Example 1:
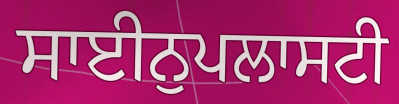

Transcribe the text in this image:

ਸਾਈਨੁਪਲਾਸਟੀ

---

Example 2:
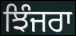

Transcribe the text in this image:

ਝਿੰਜਰਾ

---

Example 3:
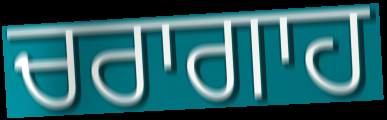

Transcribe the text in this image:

ਚਰਾਗਾਹ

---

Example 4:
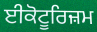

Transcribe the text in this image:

ਈਕੋਟੂਰਿਜ਼ਮ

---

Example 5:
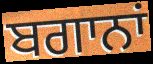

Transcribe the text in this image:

ਬਗਾਨਾਂ